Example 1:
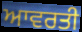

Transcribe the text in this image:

ਆਵਰਤੀ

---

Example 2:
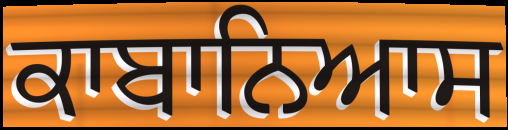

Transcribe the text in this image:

ਕਾਬਾਨਿਆਸ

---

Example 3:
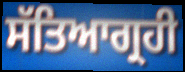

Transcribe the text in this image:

ਸੱਤਿਆਗ੍ਰਹੀ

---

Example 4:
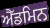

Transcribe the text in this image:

ਐੱਡਮਿਨ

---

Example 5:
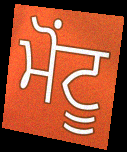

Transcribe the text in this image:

ਮੋਂਟੂ